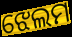
ଝେଲମ